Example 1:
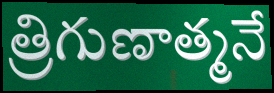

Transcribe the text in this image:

త్రిగుణాత్మనే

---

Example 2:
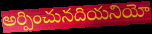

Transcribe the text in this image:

అర్పించునదియనియో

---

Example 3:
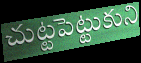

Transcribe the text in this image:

చుట్టపెట్టుకుని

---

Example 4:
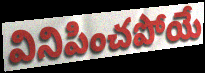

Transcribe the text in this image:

వినిపించపోయే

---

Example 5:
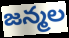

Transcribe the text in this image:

జన్మల